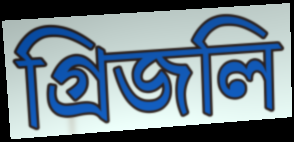
গ্রিজলি